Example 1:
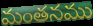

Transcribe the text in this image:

మంతనము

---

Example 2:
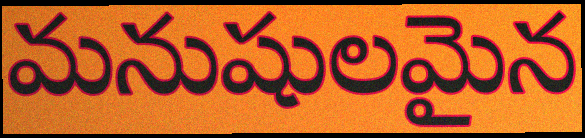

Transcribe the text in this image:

మనుషులమైన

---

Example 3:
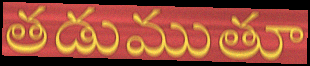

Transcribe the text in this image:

తడుముతూ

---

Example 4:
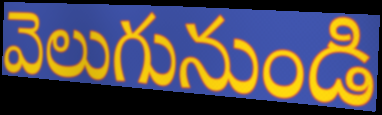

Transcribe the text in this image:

వెలుగునుండి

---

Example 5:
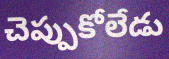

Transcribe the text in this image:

చెప్పుకోలేడు